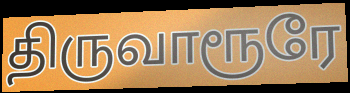
திருவாரூரே